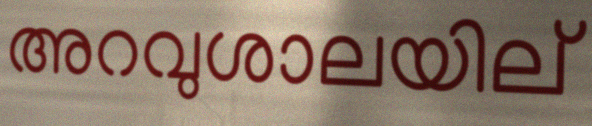
അറവുശാലയില്